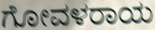
ಗೋವಳರಾಯ